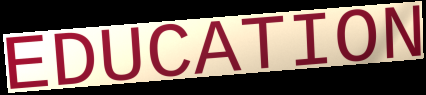
EDUCATION